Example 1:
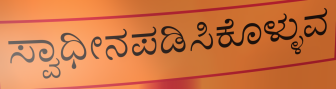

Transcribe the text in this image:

ಸ್ವಾಧೀನಪಡಿಸಿಕೊಳ್ಳುವ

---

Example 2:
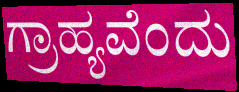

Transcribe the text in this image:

ಗ್ರಾಹ್ಯವೆಂದು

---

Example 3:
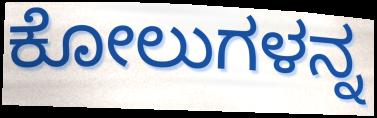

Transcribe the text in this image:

ಕೋಲುಗಳನ್ನ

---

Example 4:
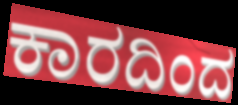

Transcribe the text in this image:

ಕಾರದಿಂದ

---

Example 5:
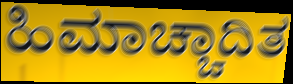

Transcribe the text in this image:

ಹಿಮಾಚ್ಚಾದಿತ